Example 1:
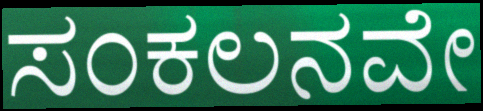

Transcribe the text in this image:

ಸಂಕಲನವೇ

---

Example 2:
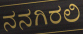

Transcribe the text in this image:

ನನಗಿರಲಿ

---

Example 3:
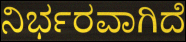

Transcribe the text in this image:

ನಿರ್ಭರವಾಗಿದೆ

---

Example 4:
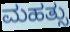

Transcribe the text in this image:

ಮಹತ್ಸು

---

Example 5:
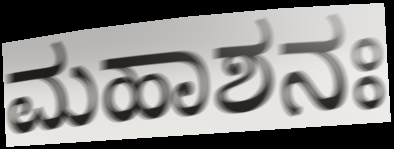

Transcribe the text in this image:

ಮಹಾಶನಃ